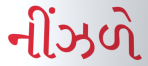
નીંઝળે